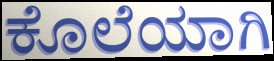
ಕೊಲೆಯಾಗಿ